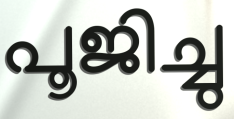
പൂജിച്ചു